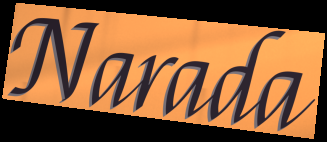
Narada